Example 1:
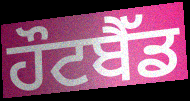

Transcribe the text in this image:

ਹੌਟਬੈੱਡ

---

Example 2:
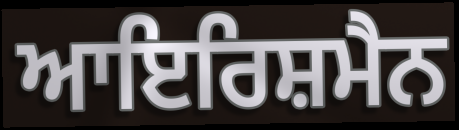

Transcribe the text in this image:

ਆਇਰਿਸ਼ਮੈਨ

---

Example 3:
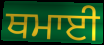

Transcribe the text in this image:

ਥਮਾਈ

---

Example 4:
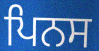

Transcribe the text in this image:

ਪਿਨਸ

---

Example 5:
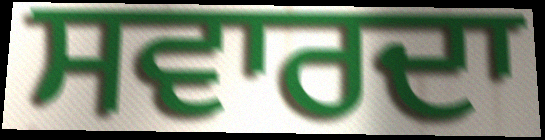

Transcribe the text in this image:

ਸਵਾਰਦਾ